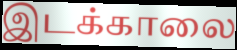
இடக்காலை